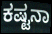
ಕಷ್ಟನಾ